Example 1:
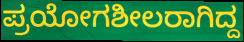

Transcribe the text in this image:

ಪ್ರಯೋಗಶೀಲರಾಗಿದ್ದ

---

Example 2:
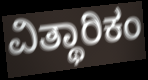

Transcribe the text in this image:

ವಿತ್ಥಾರಿಕಂ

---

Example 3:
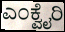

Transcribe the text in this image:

ಎಂಕ್ವೈರಿ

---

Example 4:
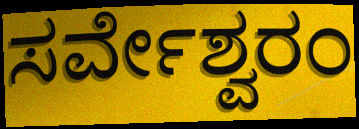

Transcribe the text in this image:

ಸರ್ವೇಶ್ವರಂ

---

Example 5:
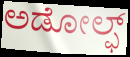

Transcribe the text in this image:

ಅಡೋಲ್ಫ್